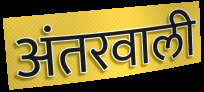
अंतरवाली